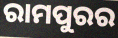
ରାମପୁରର